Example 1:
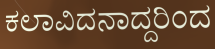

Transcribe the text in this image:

ಕಲಾವಿದನಾದ್ದರಿಂದ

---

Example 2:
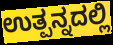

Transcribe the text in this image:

ಉತ್ಪನ್ನದಲ್ಲಿ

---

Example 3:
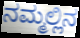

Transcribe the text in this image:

ನಮ್ಮಲ್ಲಿನ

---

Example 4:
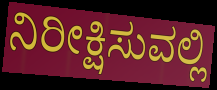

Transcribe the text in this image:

ನಿರೀಕ್ಷಿಸುವಲ್ಲಿ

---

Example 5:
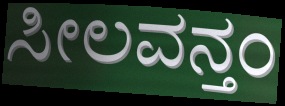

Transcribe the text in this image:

ಸೀಲವನ್ತಂ